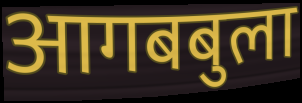
आगबबुला